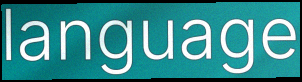
language